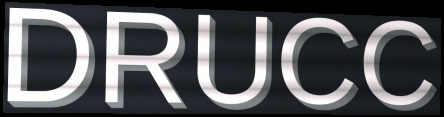
DRUCC